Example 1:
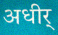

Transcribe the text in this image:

अधीर्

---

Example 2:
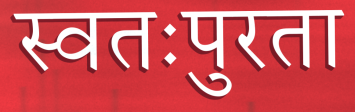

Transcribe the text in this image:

स्वतःपुरता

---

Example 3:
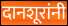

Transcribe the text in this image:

दानशूरांनी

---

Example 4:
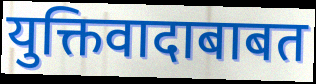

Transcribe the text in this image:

युक्तिवादाबाबत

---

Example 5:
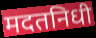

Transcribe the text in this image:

मदतनिधी